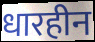
धारहीन